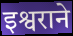
इश्वराने